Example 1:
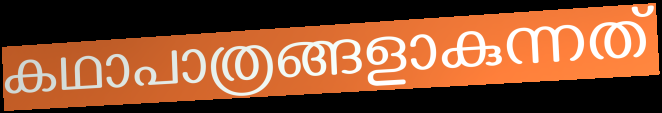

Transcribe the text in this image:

കഥാപാത്രങ്ങളാകുന്നത്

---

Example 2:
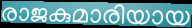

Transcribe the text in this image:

രാജകുമാരിയായ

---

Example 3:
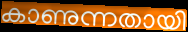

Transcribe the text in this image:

കാണുന്നതായി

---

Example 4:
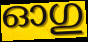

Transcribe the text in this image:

ഓഗു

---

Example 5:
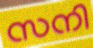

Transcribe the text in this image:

സനി